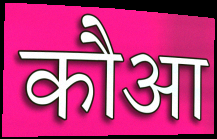
कौआ